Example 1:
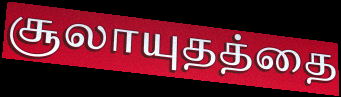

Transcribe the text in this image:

சூலாயுதத்தை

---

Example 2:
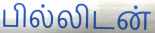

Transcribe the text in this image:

பில்லிடன்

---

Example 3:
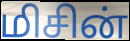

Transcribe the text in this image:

மிசின்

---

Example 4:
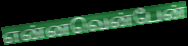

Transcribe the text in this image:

என்னவென்பேன்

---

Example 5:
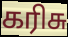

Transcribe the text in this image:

கரிசு